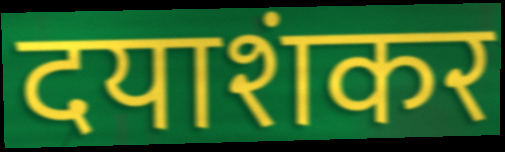
दयाशंकर